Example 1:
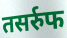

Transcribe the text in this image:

तसर्रुफ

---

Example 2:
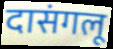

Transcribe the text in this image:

दासंगलू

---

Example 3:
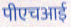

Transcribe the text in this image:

पीएचआई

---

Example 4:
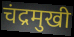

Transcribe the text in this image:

चंद्रमुखी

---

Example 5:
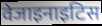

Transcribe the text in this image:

वेजाइनाइटिस